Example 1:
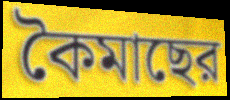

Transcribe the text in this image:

কৈমাছের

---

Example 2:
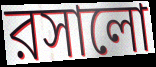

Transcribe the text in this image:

রসালো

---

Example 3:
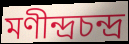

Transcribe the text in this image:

মণীন্দ্রচন্দ্র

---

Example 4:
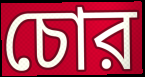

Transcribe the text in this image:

চোর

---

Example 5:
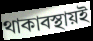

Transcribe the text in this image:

থাকাবস্থায়ই